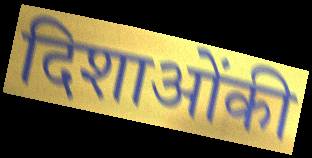
दिशाओंकी